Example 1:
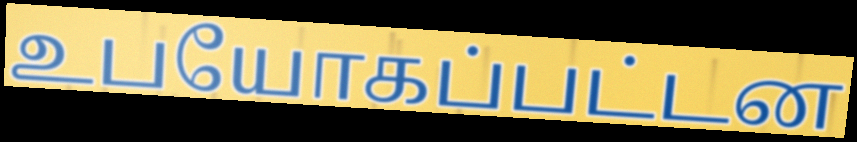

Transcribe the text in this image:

உபயோகப்பட்டன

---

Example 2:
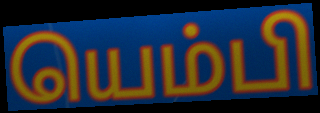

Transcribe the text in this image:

யெம்பி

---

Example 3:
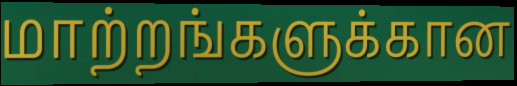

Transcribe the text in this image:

மாற்றங்களுக்கான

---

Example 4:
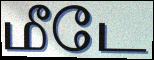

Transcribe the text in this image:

மீடே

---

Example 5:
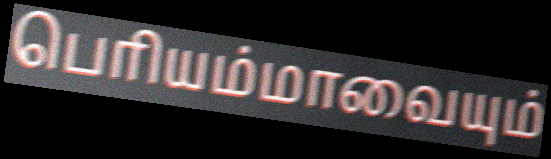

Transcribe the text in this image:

பெரியம்மாவையும்